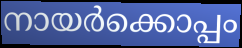
നായർക്കൊപ്പം